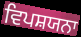
ਵਿਪਸ਼ਯਨਾ